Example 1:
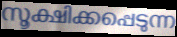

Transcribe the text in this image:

സൂക്ഷിക്കപ്പെടുന്ന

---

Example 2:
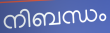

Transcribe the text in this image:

നിബന്ധം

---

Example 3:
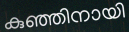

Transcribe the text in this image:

കുഞ്ഞിനായി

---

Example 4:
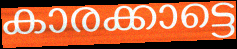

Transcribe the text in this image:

കാരക്കാട്ടെ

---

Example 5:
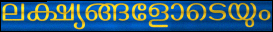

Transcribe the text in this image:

ലക്ഷ്യങ്ങളോടെയും